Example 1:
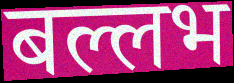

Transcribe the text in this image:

बल्लभ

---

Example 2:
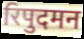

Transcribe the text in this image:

रिपुदमन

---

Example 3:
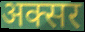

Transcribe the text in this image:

अक्सर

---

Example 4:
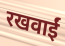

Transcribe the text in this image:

रखवाईं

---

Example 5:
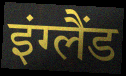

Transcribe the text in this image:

इंग्लैंड